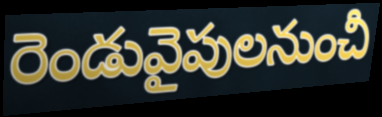
రెండువైపులనుంచీ